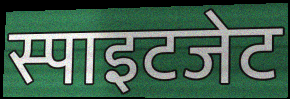
स्पाइटजेट